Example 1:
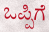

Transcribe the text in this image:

ಒಪ್ಪಿಗೆ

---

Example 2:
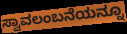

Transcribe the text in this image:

ಸ್ವಾವಲಂಬನೆಯನ್ನೂ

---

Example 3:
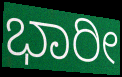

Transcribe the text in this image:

ಭಾರೀ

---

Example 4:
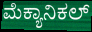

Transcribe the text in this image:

ಮೆಕ್ಯಾನಿಕಲ್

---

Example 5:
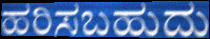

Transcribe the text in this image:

ಹರಿಸಬಹುದು